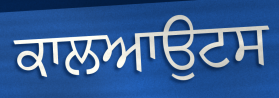
ਕਾਲਆਉਟਸ